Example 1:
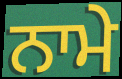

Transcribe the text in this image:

ਨਾਮੇ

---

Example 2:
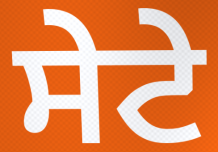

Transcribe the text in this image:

ਸੇਟੇ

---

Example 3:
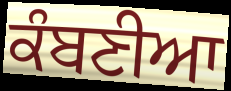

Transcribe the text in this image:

ਕੰਬਣੀਆ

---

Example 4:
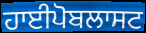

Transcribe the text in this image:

ਹਾਈਪੋਬਲਾਸਟ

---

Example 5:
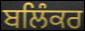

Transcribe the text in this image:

ਬਲਿੰਕਰ